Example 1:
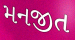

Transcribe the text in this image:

મનજીત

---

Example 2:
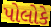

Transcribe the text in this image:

પોલોકે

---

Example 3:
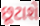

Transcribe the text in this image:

છૂટાશે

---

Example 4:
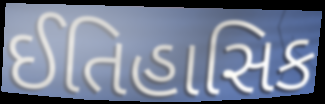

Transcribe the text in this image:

ઈતિહાસિક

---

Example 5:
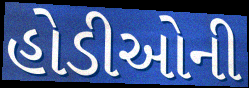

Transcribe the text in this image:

હોડીઓની